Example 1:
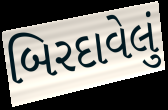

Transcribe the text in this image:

બિરદાવેલું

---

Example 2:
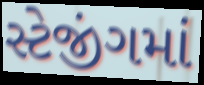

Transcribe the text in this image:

સ્ટેજીંગમાં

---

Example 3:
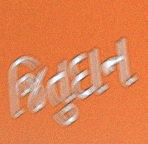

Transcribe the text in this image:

જિતુદાન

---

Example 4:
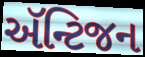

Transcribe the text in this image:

ઍન્ટિજન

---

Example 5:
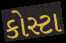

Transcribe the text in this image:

કોસ્ટા